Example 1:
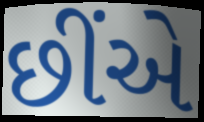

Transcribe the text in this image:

છીંએ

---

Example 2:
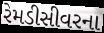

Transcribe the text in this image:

રેમડીસીવરના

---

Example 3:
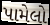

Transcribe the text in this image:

પામેલો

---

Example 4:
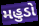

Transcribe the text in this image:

મહુડો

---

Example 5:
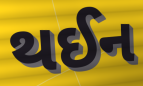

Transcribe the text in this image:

થઈન